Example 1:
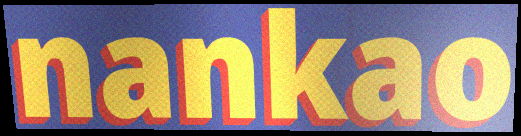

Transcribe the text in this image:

nankao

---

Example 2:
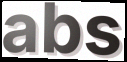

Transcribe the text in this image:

abs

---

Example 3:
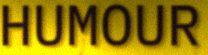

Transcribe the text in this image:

HUMOUR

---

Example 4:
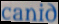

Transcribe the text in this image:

canid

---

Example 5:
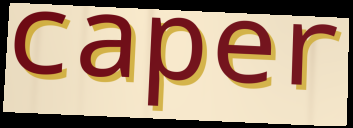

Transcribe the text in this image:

caper